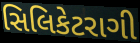
સિલિકેટરાગી